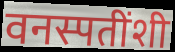
वनस्पतींशी